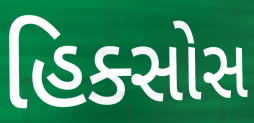
હિક્સોસ